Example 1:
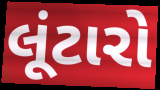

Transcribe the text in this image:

લૂંટારો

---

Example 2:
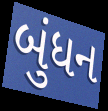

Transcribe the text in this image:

બુંધન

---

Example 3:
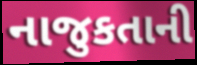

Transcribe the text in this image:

નાજુકતાની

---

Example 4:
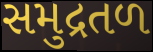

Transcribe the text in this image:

સમુદ્રતળ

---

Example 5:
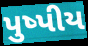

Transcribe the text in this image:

પુષ્પીય